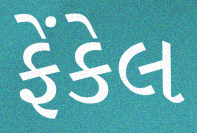
ફેંકેલ